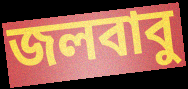
জলবাবু